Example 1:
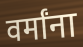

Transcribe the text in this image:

वर्मांना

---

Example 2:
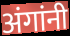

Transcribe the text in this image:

अंगांनी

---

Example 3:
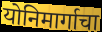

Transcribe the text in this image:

योनिमार्गाचा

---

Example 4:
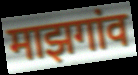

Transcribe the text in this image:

माझगांव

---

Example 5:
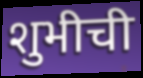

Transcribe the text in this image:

शुभीची